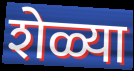
शेळ्या